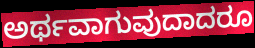
ಅರ್ಥವಾಗುವುದಾದರೂ